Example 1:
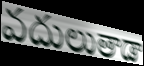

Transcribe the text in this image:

వదులుతాడా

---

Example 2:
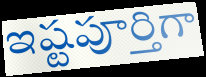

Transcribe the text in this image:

ఇష్టపూర్తిగా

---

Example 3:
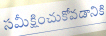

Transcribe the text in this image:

సమీక్షించుకోవడానికి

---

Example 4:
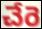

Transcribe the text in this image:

చేరె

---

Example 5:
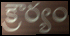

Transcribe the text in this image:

క్రౌర్యం